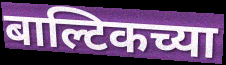
बाल्टिकच्या